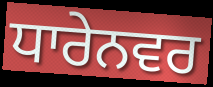
ਧਾਰੇਨਵਰ